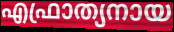
എഫ്രാത്യനായ